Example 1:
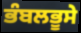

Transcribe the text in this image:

ਭੰਬਲਭੂਸੇ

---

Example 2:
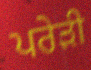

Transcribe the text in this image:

ਪਰੇੜੀ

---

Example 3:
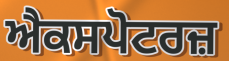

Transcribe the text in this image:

ਐਕਸਪੋਟਰਜ਼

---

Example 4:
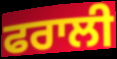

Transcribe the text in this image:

ਫਰਾਲੀ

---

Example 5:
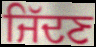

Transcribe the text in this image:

ਜਿੱਦਣ